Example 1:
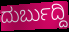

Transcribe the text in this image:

ದುರ್ಬುದ್ದಿ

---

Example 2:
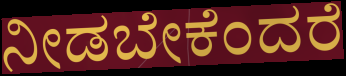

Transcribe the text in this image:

ನೀಡಬೇಕೆಂದರೆ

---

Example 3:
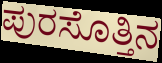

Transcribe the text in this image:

ಪುರಸೊತ್ತಿನ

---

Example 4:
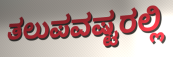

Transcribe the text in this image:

ತಲುಪವಷ್ಟರಲ್ಲಿ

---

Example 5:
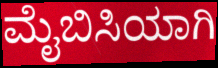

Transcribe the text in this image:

ಮೈಬಿಸಿಯಾಗಿ